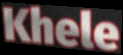
Khele